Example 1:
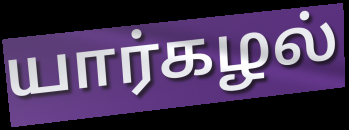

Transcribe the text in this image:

யார்கழல்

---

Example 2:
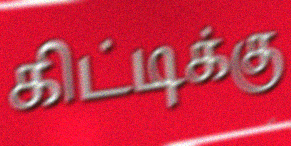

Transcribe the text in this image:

கிட்டிக்கு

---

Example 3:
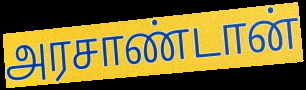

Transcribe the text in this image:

அரசாண்டான்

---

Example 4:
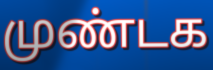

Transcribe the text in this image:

முண்டக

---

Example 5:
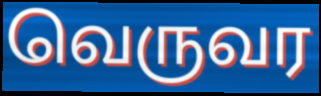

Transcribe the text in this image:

வெருவர